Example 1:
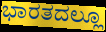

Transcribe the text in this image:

ಭಾರತದಲ್ಲೂ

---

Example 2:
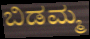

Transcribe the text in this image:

ಬಿಡಮ್ಮ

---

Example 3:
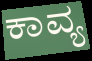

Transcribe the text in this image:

ಕಾವ್ಯ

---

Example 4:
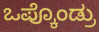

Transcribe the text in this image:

ಒಪ್ಕೊಂಡ್ರು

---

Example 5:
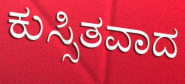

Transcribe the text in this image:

ಕುಸ್ಸಿತವಾದ